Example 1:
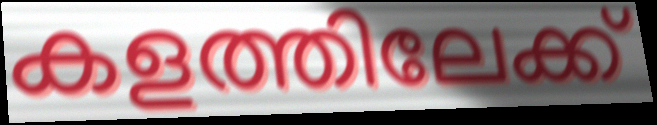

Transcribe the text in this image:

കളത്തിലേക്ക്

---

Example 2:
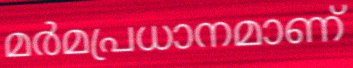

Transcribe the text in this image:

മർമപ്രധാനമാണ്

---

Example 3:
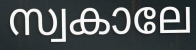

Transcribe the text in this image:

സ്വകാലേ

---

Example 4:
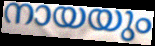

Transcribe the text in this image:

നായയും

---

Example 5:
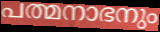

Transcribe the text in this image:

പത്മനാഭനും